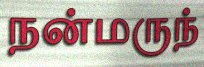
நன்மருந்